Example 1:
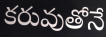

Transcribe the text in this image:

కరువుతోనే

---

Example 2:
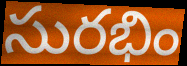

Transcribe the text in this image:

సురభిం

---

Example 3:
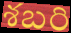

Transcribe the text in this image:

శబరి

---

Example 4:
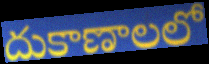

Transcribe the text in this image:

దుకాణాలలో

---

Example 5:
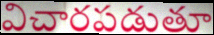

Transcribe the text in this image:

విచారపడుతూ